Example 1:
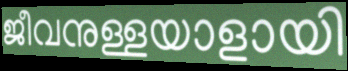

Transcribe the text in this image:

ജീവനുള്ളയാളായി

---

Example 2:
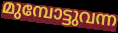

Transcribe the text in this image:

മുമ്പോട്ടുവന്ന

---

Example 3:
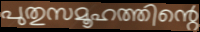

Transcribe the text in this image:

പുതുസമൂഹത്തിന്റെ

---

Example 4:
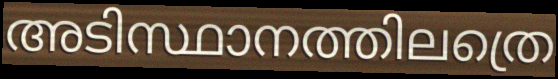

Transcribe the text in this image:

അടിസ്ഥാനത്തിലത്രെ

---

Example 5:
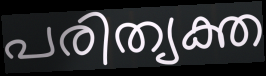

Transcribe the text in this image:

പരിത്യക്ത